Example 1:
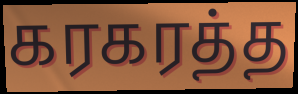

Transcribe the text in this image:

கரகரத்த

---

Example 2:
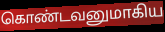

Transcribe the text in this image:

கொண்டவனுமாகிய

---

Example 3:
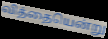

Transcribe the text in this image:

வித்தையென்று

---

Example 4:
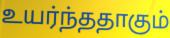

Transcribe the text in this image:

உயர்ந்ததாகும்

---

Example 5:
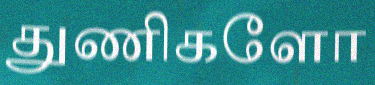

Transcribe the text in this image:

துணிகளோ